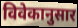
विवेकानुसार